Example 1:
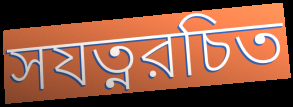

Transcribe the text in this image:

সযত্নরচিত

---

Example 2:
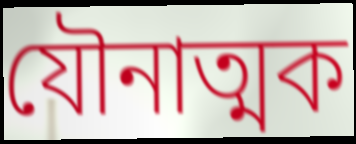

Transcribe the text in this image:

যৌনাত্মক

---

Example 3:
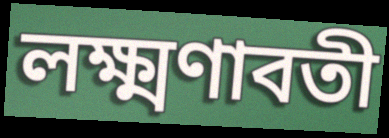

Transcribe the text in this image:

লক্ষ্মণাবতী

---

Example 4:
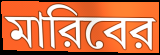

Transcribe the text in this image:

মারিবের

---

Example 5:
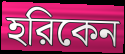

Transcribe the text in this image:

হরিকেন